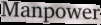
Manpower